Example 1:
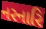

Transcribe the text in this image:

નરનારિ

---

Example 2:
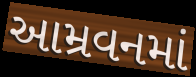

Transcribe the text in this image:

આમ્રવનમાં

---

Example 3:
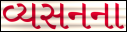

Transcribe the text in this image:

વ્યસનના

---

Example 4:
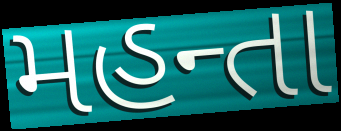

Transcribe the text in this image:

મહન્તા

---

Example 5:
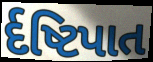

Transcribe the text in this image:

ર્દષ્ટિપાત